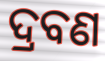
ଦ୍ରବଣ